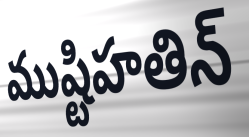
ముష్టిహతిన్